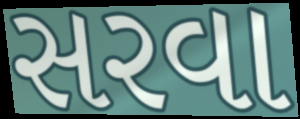
સરવા